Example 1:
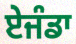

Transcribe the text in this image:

ਏਜੰਡਾ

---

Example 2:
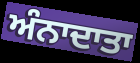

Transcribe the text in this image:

ਅੰਨਾਦਾਤਾ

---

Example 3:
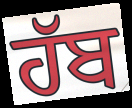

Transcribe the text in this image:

ਹੱਬ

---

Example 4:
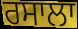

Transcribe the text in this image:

ਰਸਾਲਾ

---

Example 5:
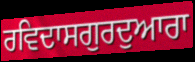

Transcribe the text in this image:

ਰਵਿਦਾਸਗੁਰਦੁਆਰਾ